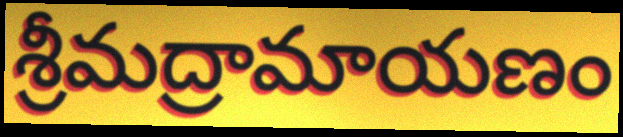
శ్రీమద్రామాయణం